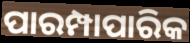
ପାରମ୍ପାପାରିକ